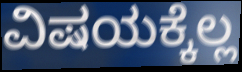
ವಿಷಯಕ್ಕೆಲ್ಲ